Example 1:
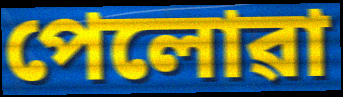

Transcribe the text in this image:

পেলোৱা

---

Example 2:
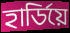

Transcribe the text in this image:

হাৰ্ডিয়ে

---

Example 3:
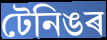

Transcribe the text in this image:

টেনিঙৰ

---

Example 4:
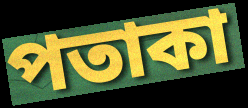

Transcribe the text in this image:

পতাকা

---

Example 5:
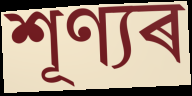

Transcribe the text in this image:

শূণ্যৰ